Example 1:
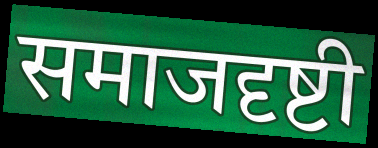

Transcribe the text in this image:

समाजदृष्टी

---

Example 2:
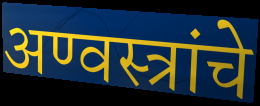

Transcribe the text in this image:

अण्वस्त्रांचे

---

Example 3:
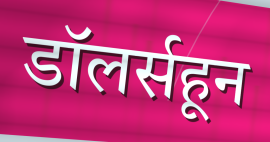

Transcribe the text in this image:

डॉलर्सहून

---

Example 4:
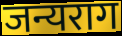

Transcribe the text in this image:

जन्यराग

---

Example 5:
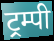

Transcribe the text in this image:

ट्रम्पी